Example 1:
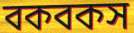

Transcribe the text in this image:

বকবকস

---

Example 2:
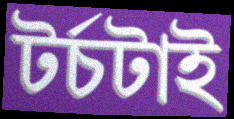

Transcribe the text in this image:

টর্চটাই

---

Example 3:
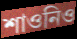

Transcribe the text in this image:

শাওনিও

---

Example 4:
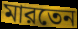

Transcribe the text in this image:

মারতেন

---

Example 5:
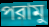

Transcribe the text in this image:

পরামু